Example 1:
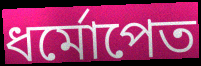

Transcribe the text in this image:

ধর্মোপেত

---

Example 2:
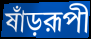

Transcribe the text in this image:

ষাঁড়রূপী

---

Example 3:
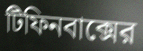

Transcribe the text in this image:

টিফিনবাক্সের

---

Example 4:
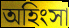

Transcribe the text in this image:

অহিংসা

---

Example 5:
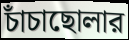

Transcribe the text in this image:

চাঁচাছোলার